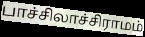
பாச்சிலாச்சிராமம்